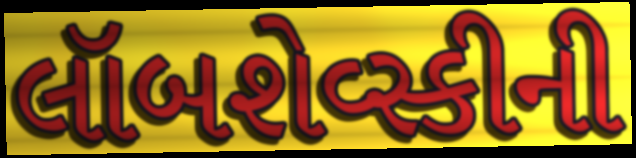
લૉબશેવ્સ્કીની